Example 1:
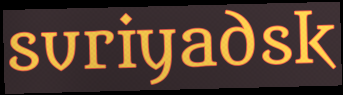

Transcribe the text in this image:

suriyadsk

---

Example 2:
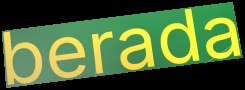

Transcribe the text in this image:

berada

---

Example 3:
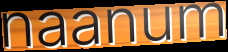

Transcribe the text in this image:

naanum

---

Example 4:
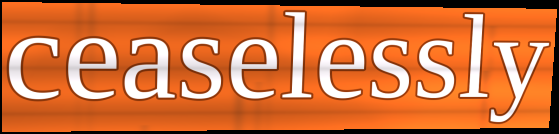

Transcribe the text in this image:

ceaselessly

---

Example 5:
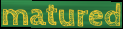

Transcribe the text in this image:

matured